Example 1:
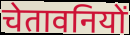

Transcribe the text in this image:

चेतावनियों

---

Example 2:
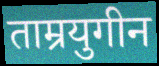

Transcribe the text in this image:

ताम्रयुगीन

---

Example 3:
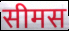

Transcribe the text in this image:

सीमस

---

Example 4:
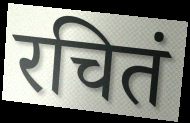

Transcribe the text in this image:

रचितं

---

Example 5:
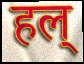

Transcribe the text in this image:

हल्